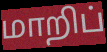
மாறிப்